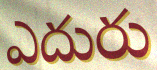
ఎదురు